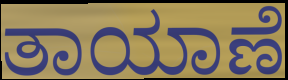
ತಾಯಾಣೆ